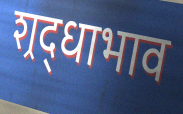
श्रद्धाभाव